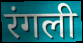
रंगली